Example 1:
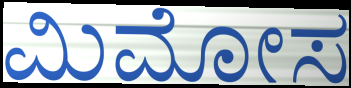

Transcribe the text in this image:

ಮಿಮೋಸ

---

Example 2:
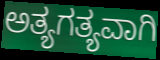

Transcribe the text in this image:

ಅತ್ಯಗತ್ಯವಾಗಿ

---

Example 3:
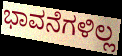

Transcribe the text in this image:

ಭಾವನೆಗಳಿಲ್ಲ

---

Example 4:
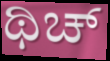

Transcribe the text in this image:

ಥಿಚ್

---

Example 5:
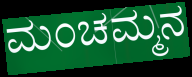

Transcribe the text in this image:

ಮಂಚಮ್ಮನ